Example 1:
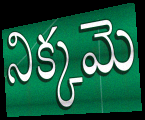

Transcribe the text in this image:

నిక్కమె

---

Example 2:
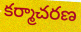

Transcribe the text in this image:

కర్మాచరణ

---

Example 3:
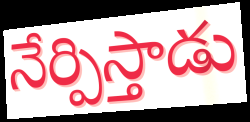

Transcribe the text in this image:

నేర్పిస్తాడు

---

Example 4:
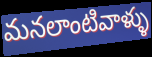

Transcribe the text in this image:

మనలాంటివాళ్ళు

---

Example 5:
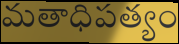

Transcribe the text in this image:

మతాధిపత్యం